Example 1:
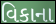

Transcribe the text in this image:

વિકાના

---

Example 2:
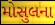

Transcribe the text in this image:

મોસુલના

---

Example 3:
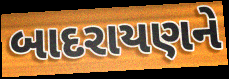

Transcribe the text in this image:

બાદરાયણને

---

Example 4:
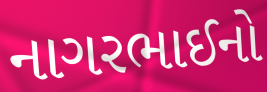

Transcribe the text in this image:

નાગરભાઈનો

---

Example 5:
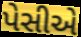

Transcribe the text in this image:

પેસીએ